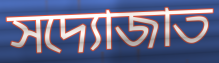
সদ্যোজাত